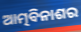
ଆତ୍ମବିନାଶର